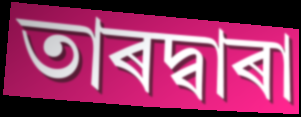
তাৰদ্বাৰা